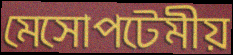
মেসোপটেমীয়